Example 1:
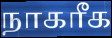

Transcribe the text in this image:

நாகரீக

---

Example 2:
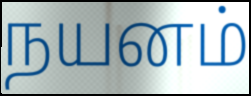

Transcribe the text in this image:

நயனம்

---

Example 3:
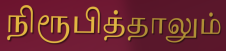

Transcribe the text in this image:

நிரூபித்தாலும்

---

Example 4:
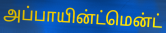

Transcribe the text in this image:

அப்பாயின்ட்மென்ட்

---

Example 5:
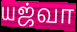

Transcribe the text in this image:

யஜ்வா